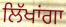
ਲਿੱਖਾਂਗਾ